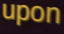
upon